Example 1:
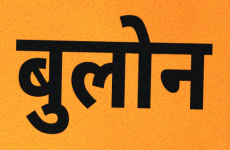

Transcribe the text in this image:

बुलोन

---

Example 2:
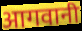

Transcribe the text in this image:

आगवानी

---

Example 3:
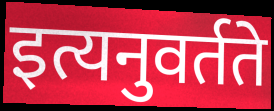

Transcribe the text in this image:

इत्यनुवर्तते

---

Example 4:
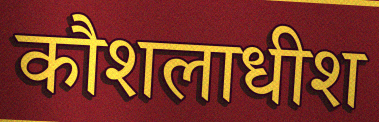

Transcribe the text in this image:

कौशलाधीश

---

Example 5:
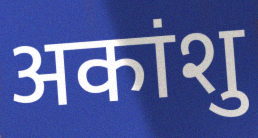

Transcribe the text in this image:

अकांशु